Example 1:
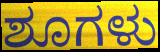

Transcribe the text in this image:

ಶೂಗಳು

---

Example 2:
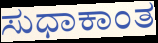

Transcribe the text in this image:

ಸುಧಾಕಾಂತ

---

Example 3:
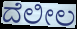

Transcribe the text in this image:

ದೆಲೀಲ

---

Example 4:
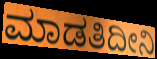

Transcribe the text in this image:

ಮಾಡತಿದೀನಿ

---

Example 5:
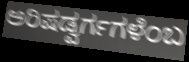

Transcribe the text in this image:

ಅರಿಷಡ್ವರ್ಗಗಳೆಂಬ